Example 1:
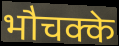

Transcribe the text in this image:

भौचक्के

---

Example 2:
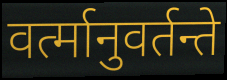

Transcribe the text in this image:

वर्त्मानुवर्तन्ते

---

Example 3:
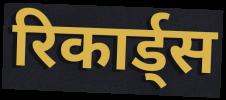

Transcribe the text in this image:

रिकार्ड्स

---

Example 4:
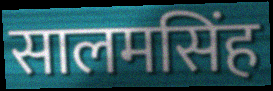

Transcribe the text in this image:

सालमसिंह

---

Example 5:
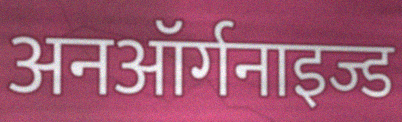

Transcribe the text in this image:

अनऑर्गनाइज्ड